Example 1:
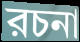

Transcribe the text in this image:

রচনা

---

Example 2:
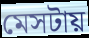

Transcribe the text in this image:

মেসটায়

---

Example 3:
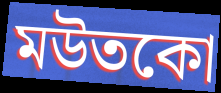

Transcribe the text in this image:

মউতকো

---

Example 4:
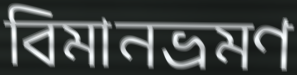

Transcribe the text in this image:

বিমানভ্রমণ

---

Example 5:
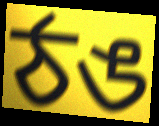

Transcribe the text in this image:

ঠঙ